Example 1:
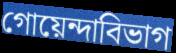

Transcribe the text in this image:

গোয়েন্দাবিভাগ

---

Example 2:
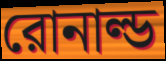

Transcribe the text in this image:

রোনাল্ড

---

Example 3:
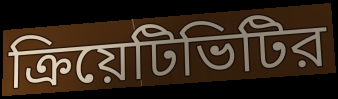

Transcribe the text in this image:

ক্রিয়েটিভিটির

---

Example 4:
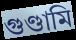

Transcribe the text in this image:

গুণ্ডামি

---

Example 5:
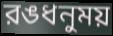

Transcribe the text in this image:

রঙধনুময়